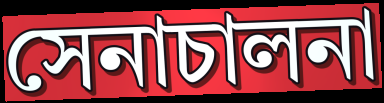
সেনাচালনা